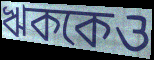
ঋককেও